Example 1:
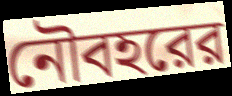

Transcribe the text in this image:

নৌবহরের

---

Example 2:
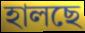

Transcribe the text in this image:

হালছে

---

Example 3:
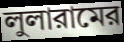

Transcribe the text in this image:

লুলারামের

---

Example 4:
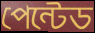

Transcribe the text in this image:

পেন্টেড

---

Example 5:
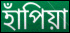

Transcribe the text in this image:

হাঁপিয়া